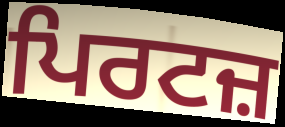
ਪਿਰਟਜ਼